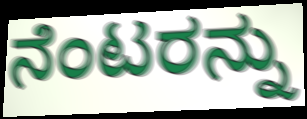
ನೆಂಟರನ್ನು